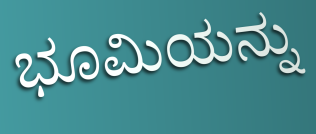
ಭೂಮಿಯನ್ನು